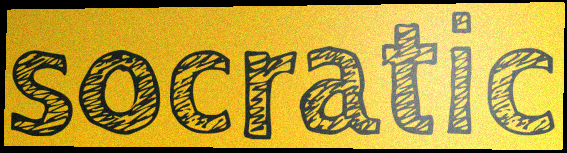
socratic